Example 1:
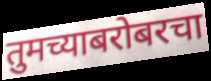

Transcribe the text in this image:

तुमच्याबरोबरचा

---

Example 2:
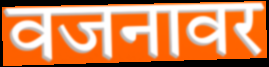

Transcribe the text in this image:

वजनावर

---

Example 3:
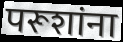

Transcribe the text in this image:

परूशांना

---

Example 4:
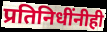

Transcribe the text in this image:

प्रतिनिधींनीही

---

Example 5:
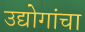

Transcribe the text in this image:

उद्योगांचा